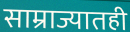
साम्राज्यातही